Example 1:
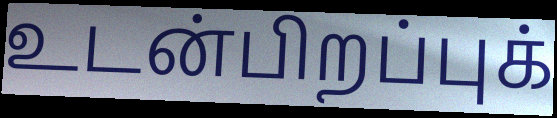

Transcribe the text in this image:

உடன்பிறப்புக்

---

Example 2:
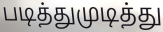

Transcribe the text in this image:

படித்துமுடித்து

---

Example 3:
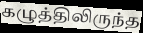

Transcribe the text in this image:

கழுத்திலிருந்த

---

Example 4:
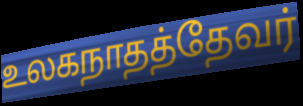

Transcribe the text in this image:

உலகநாதத்தேவர்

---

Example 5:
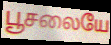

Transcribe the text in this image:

பூசலையே